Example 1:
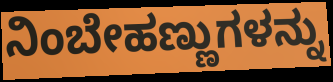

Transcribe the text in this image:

ನಿಂಬೇಹಣ್ಣುಗಳನ್ನು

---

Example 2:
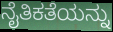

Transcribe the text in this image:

ನೈತಿಕತೆಯನ್ನು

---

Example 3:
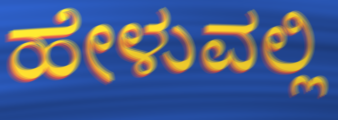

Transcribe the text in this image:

ಹೇಳುವಲ್ಲಿ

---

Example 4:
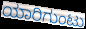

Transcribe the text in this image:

ಯಾರಿಗುಂಟು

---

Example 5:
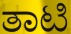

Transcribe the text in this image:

ತಾಟಿ